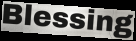
Blessing